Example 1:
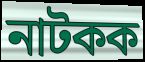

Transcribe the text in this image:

নাটকক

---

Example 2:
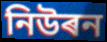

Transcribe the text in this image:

নিউৰন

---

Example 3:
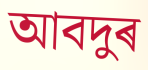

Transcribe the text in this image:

আবদুৰ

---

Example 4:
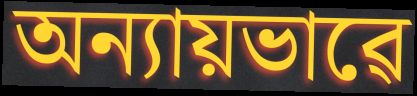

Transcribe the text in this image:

অন্যায়ভাৱে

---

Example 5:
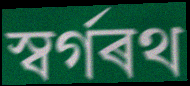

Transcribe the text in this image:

স্বৰ্গৰথ